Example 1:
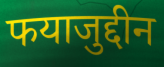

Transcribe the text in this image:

फयाजुद्दीन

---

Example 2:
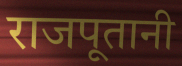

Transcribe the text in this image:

राजपूतानी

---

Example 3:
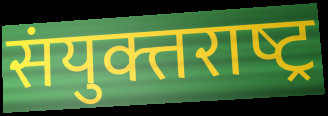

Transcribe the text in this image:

संयुक्तराष्ट्र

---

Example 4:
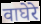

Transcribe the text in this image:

वाघेरे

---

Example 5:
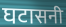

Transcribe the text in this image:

घटासनी